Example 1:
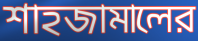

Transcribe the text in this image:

শাহজামালের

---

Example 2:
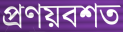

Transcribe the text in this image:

প্রণয়বশত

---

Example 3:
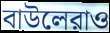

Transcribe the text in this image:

বাউলেরাও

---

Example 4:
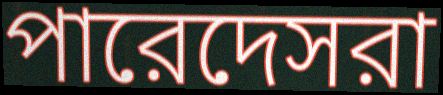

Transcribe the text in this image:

পারেদেসরা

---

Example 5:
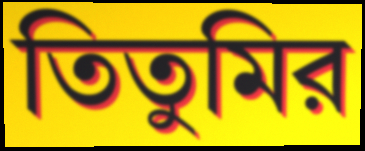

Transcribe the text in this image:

তিতুমির